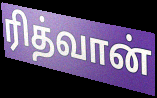
ரித்வான்